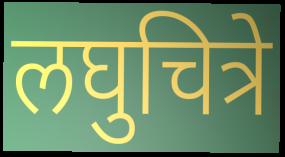
लघुचित्रे